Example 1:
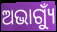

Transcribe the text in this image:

ଅଭାଗ୍ୟୁଁ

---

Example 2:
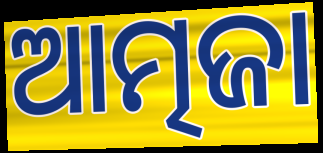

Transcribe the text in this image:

ଆତ୍ମଜା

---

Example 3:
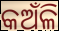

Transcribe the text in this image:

କଅଁଳି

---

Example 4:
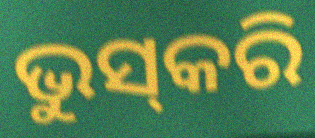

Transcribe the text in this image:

ଭୁସ୍‌କରି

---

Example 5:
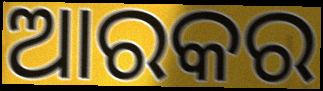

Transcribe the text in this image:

ଆରକର